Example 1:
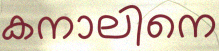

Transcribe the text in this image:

കനാലിനെ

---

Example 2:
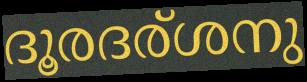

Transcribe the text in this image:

ദൂരദര്ശനു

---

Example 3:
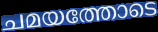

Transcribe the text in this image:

ചമയത്തോടെ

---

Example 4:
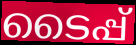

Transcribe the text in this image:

ടൈപ്പ്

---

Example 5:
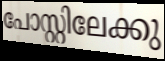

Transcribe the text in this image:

പോസ്റ്റിലേക്കു